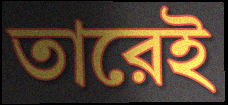
তারেই